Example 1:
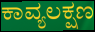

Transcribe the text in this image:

ಕಾವ್ಯಲಕ್ಷಣ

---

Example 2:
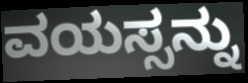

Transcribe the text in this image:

ವಯಸ್ಸನ್ನು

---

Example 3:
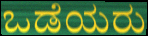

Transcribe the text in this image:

ಒಡೆಯರು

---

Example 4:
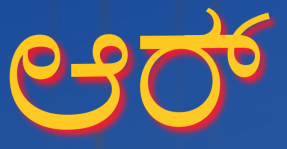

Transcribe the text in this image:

ಆರ್‍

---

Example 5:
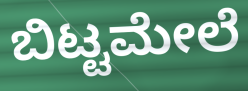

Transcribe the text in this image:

ಬಿಟ್ಟಮೇಲೆ